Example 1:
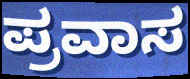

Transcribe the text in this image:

ಪ್ರವಾಸ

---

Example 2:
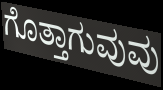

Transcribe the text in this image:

ಗೊತ್ತಾಗುವುವು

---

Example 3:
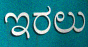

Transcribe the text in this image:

ಇರಲು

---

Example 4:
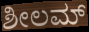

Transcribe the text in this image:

ಶೀಲಮ್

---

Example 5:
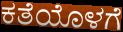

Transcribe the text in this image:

ಕತೆಯೊಳಗೆ